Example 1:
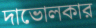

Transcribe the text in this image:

দাভোলকার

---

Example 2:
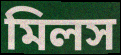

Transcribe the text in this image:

মিলস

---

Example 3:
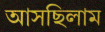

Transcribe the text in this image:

আসছিলাম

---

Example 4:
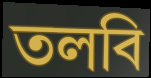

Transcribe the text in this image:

তলবি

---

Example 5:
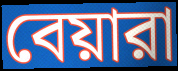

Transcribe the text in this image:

বেয়ারা